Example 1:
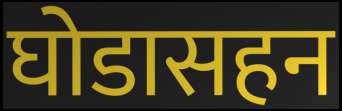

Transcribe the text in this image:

घोडासहन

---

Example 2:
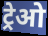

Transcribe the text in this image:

ट्रेओ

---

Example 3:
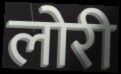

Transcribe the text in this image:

लोरी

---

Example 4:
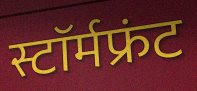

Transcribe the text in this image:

स्टॉर्मफ्रंट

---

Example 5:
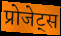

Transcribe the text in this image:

प्रोजेट्स